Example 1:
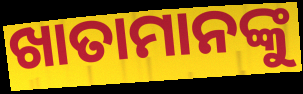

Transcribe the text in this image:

ଖାତାମାନଙ୍କୁ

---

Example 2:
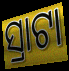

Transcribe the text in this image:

ସ୍ରାଟା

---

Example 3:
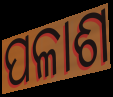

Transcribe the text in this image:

ପଳାଶ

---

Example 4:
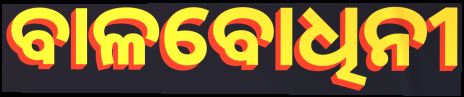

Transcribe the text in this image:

ବାଳବୋଧିନୀ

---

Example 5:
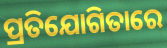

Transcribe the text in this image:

ପ୍ରତିଯୋଗିତାରେ